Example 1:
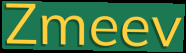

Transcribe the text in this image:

Zmeev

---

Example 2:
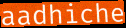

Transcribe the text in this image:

aadhiche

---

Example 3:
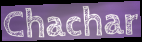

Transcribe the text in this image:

Chachar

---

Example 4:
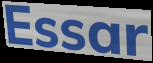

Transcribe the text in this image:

Essar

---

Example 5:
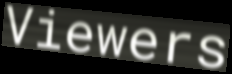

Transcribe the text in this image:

Viewers